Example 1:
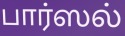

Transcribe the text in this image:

பார்ஸல்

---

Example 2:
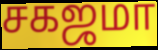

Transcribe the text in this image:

சகஜமா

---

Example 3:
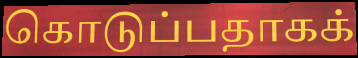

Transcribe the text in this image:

கொடுப்பதாகக்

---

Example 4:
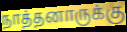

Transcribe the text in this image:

நாத்தனாருக்கு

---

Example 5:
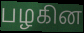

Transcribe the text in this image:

பழகின